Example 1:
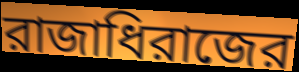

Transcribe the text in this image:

রাজাধিরাজের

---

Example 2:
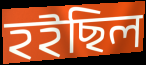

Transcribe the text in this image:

হইছিল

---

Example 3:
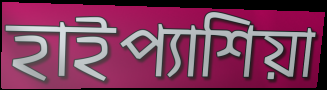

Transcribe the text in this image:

হাইপ্যাশিয়া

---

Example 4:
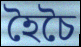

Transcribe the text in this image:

হৈচৈ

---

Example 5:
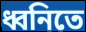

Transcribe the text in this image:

ধ্বনিতে